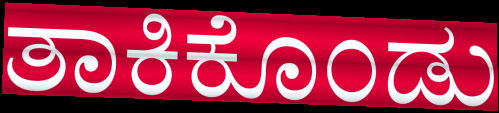
ತಾಕಿಕೊಂಡು